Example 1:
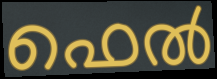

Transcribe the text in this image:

ഫെൽ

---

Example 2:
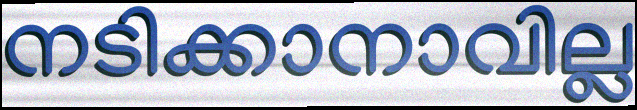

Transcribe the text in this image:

നടിക്കാനാവില്ല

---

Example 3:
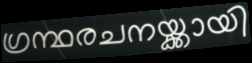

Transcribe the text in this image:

ഗ്രന്ഥരചനയ്ക്കായി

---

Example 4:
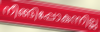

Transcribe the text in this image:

നീങ്ങിപ്പോകുന്നില്ല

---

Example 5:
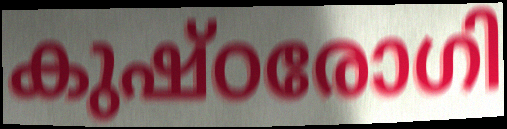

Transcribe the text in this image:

കുഷ്ഠരോഗി